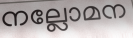
നല്ലോമന